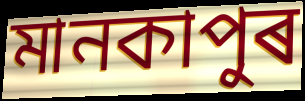
মানকাপুৰ